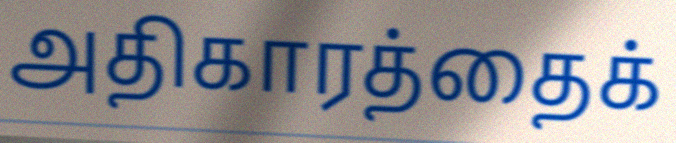
அதிகாரத்தைக்